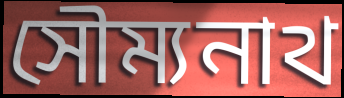
সৌম্যনাথ